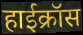
हाईक्रॉस